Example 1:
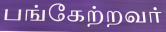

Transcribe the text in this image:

பங்கேற்றவர்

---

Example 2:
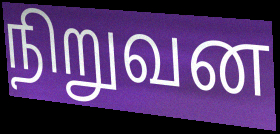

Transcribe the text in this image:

நிறுவன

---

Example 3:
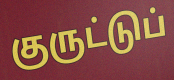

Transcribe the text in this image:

குருட்டுப்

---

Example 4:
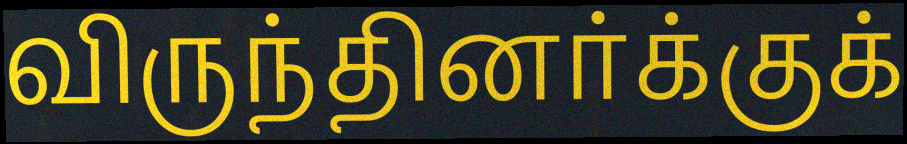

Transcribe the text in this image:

விருந்தினர்க்குக்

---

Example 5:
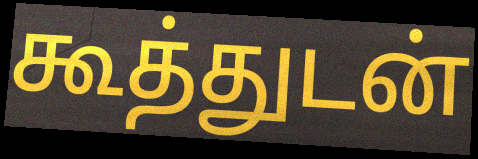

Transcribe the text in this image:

கூத்துடன்